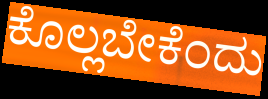
ಕೊಲ್ಲಬೇಕೆಂದು